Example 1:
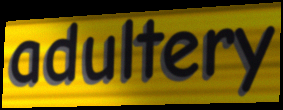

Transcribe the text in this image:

adultery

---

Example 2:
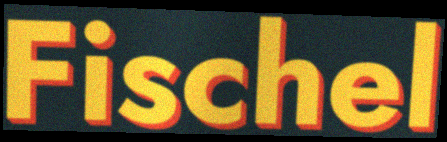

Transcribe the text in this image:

Fischel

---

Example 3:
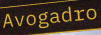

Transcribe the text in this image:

Avogadro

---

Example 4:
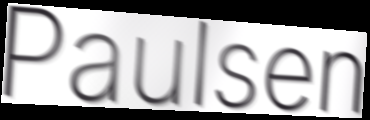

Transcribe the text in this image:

Paulsen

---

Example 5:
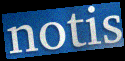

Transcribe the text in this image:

notis